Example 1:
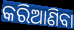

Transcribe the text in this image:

କରିଆଣିବା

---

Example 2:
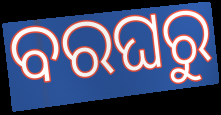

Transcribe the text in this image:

ବରଘରୁ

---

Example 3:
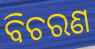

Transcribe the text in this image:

ବିଚରଣ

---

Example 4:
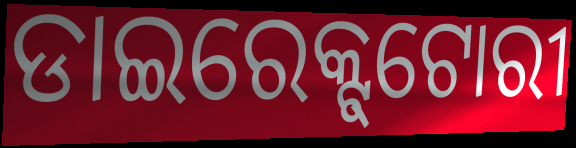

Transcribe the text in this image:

ଡାଇରେକ୍ଟ୍‌ଟୋରୀ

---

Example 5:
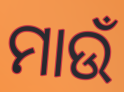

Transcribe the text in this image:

ମାଉଁ